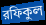
রফিকুল